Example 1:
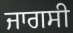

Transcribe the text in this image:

ਜਾਗਸੀ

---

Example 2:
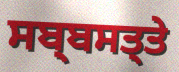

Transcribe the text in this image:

ਸਬ੍ਬਸਤ੍ਤੇ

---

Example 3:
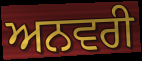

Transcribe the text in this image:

ਅਨਵਰੀ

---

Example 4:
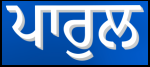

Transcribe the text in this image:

ਪਾਰੁਲ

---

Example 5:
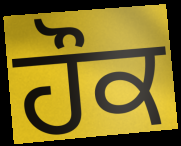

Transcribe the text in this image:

ਹੌਕ